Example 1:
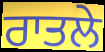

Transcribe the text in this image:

ਰਾਤਲੇ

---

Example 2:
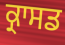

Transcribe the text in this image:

ਕ੍ਰਾਸਡ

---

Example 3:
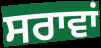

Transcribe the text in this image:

ਸਰਾਵਾਂ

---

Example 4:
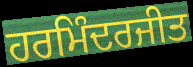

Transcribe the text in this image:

ਹਰਮਿੰਦਰਜੀਤ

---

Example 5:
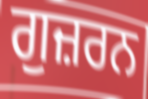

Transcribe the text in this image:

ਗੁਜ਼ਰਨ